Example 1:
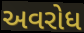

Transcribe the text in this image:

અવરોધ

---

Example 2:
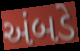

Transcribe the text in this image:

અંબડે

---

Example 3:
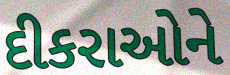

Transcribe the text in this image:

દીકરાઓને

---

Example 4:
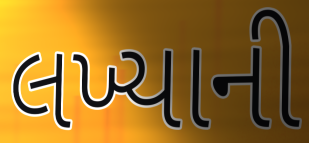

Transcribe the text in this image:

લખ્યાની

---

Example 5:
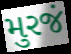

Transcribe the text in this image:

મુરજં